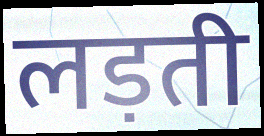
लड़ती